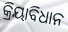
କ୍ରିୟାବିଧାନ